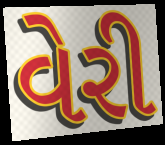
વેરી